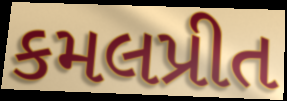
કમલપ્રીત